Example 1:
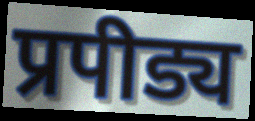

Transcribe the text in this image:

प्रपीड्य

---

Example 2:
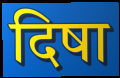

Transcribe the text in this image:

दिषा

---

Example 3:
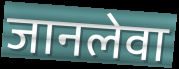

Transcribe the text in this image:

जानलेवा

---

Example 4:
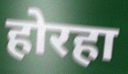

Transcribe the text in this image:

होरहा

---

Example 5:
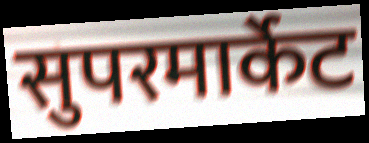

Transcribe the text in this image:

सुपरमार्केट